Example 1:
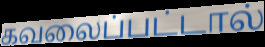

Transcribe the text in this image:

கவலைப்பட்டால்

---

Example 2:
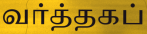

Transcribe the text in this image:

வர்த்தகப்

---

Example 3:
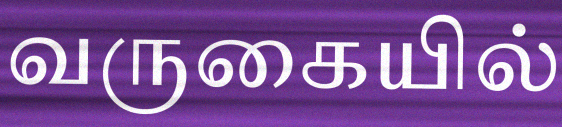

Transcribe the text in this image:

வருகையில்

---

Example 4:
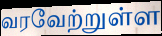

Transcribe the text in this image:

வரவேற்றுள்ள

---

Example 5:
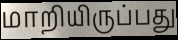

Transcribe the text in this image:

மாறியிருப்பது